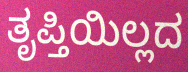
ತೃಪ್ತಿಯಿಲ್ಲದ